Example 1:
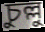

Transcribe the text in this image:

চুল্লু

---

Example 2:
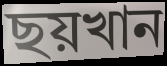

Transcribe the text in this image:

ছয়খান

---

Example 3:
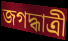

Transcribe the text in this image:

জগদ্ধাত্রী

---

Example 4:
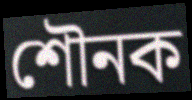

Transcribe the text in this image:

শৌনক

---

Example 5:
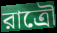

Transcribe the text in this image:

রাত্রৌ